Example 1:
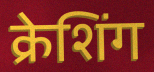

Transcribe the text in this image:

क्रेशिंग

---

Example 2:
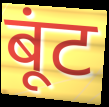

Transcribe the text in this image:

बूंट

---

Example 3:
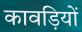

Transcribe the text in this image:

कावड़ियों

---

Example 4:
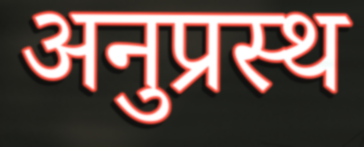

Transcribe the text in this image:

अनुप्रस्थ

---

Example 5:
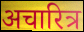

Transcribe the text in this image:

अचारित्र